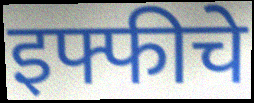
इफ्फीचे